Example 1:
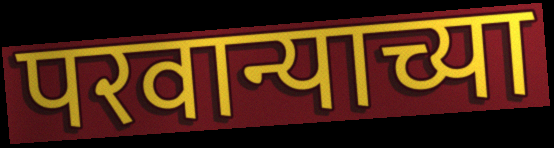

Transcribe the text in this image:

परवान्याच्या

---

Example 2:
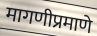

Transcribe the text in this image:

मागणीप्रमाणे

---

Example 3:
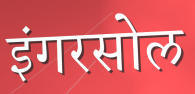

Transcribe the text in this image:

इंगरसोल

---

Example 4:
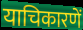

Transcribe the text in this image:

याचिकारणें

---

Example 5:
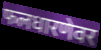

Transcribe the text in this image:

फलधारणेवर